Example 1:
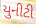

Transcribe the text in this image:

યુનીટી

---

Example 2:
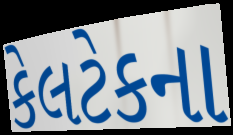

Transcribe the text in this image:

કેલટેકના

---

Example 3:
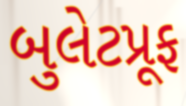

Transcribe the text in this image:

બુલેટપ્રૂફ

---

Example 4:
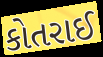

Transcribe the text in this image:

કોતરાઈ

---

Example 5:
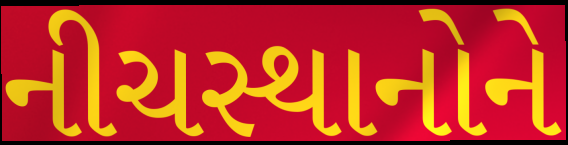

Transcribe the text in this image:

નીચસ્થાનોને